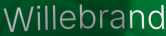
Willebrand